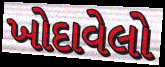
ખોદાવેલો